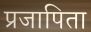
प्रजापिता